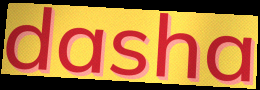
dasha